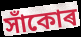
সাঁকোৰ